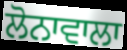
ਲੋਨਾਵਾਲਾ